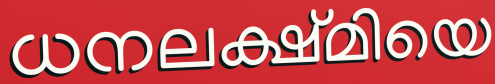
ധനലക്ഷ്മിയെ